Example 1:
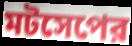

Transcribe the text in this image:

মটসেপের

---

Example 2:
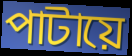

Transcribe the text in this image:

পাটায়ে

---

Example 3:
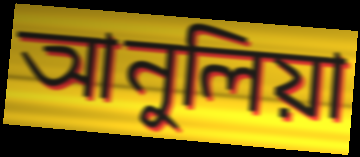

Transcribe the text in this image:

আনুলিয়া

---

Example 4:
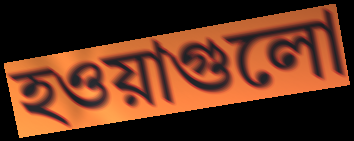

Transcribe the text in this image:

হওয়াগুলো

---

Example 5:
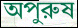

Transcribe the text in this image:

অপুরুষ